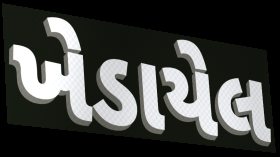
ખેડાયેલ